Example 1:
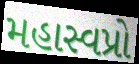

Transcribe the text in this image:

મહાસ્વપ્રો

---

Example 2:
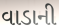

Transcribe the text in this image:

વાડાની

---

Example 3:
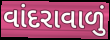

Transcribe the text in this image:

વાંદરાવાળું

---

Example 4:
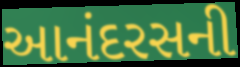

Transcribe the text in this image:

આનંદરસની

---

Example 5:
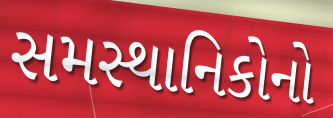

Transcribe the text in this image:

સમસ્થાનિકોનો